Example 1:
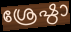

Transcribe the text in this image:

ശ്രേഷ്ഠാ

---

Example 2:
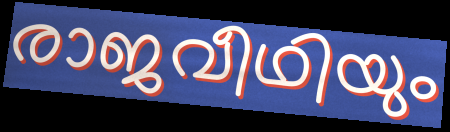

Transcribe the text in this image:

രാജവീഥിയും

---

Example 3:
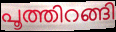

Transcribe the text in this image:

പൂത്തിറങ്ങി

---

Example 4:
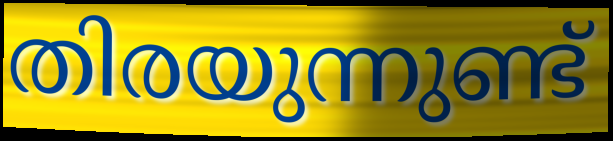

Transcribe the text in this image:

തിരയുന്നുണ്ട്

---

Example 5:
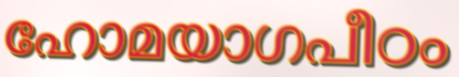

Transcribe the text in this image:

ഹോമയാഗപീഠം